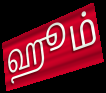
ஹூம்